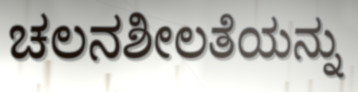
ಚಲನಶೀಲತೆಯನ್ನು